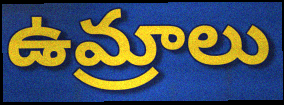
ఉమ్రాలు